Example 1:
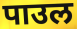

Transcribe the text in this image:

पाउल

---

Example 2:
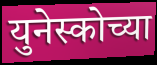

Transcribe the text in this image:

युनेस्कोच्या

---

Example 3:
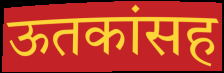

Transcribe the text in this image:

ऊतकांसह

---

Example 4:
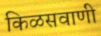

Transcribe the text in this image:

किळसवाणी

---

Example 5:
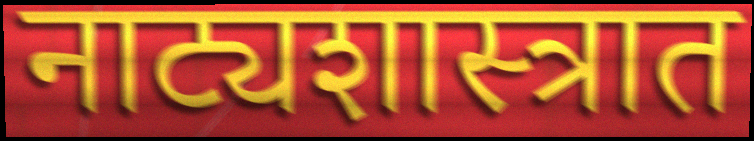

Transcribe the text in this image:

नाट्यशास्त्रात